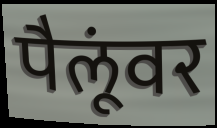
पैलूंवर